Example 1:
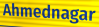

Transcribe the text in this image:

Ahmednagar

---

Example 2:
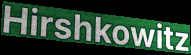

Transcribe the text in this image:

Hirshkowitz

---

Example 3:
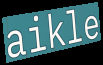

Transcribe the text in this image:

aikle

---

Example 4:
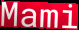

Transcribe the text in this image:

Mami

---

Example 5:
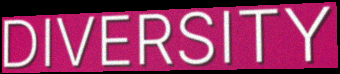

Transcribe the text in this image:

DIVERSITY